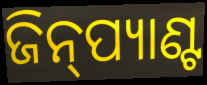
ଜିନ୍‍ପ୍ୟାଣ୍ଟ